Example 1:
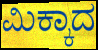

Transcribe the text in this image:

ಮಿಕ್ಕಾದ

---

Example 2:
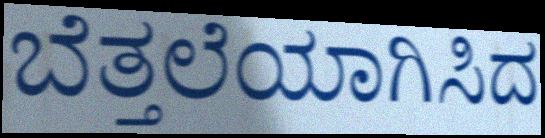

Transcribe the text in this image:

ಬೆತ್ತಲೆಯಾಗಿಸಿದ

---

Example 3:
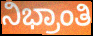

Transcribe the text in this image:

ನಿಭ್ರಾಂತಿ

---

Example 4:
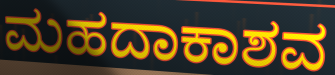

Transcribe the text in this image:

ಮಹದಾಕಾಶವ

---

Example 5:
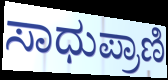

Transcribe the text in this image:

ಸಾಧುಪ್ರಾಣಿ